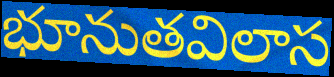
భూనుతవిలాస